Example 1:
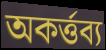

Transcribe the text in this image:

অকর্ত্তব্য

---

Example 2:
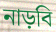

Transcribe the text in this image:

নাড়বি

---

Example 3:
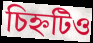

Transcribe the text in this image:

চিহ্নটিও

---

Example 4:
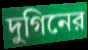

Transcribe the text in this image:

দুগিনের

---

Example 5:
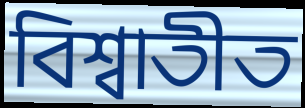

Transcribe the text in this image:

বিশ্বাতীত